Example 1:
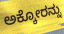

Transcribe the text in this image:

ಅಕ್ಕೋರನ್ನು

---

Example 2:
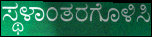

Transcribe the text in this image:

ಸ್ಥಳಾಂತರಗೊಳಿಸಿ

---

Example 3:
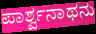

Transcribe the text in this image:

ಪಾರ್ಶ್ವನಾಥನು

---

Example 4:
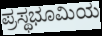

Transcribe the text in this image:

ಪ್ರಸ್ಥಭೂಮಿಯ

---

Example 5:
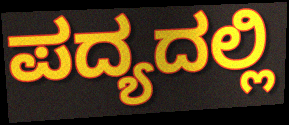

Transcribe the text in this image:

ಪದ್ಯದಲ್ಲಿ